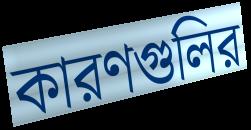
কারণগুলির